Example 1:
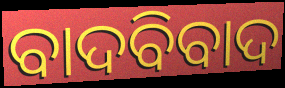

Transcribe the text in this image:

ବାଦବିବାଦ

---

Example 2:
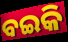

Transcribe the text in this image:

ବଇକି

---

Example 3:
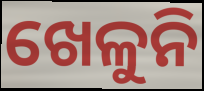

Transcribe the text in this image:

ଖେଳୁନି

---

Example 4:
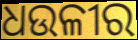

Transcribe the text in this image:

ଧଉଳୀର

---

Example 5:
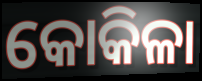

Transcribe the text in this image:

କୋକିଳା